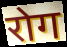
रोग